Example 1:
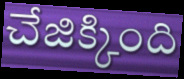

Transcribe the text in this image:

చేజిక్కింది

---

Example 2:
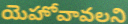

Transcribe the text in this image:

యెహోవావలని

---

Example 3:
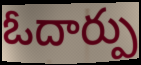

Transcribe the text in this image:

ఓదార్పు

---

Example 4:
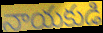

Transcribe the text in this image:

నాయకుడి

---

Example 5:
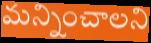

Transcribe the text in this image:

మన్నించాలని